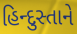
હિન્દુસ્તાને